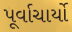
પૂર્વાચાર્યો